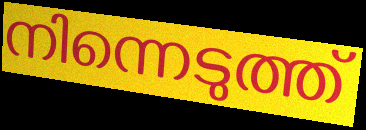
നിന്നെടുത്ത്